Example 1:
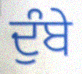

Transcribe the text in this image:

ਦੁੰਬੇ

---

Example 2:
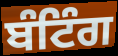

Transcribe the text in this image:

ਬੰਟਿੰਗ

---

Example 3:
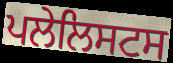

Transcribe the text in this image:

ਪਲੇਲਿਸਟਸ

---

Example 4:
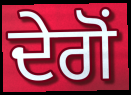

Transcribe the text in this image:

ਦੇਗੋਂ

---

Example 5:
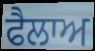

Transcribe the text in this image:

ਫੈਲਾਅ